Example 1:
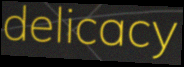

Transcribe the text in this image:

delicacy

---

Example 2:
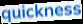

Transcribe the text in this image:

quickness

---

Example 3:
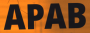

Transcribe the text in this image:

APAB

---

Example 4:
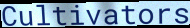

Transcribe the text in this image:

Cultivators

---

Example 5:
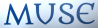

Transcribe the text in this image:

MUSE